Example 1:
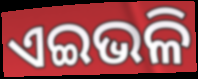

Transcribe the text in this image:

ଏଇଭଳି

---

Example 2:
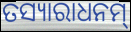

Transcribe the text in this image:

ତସ୍ୟାରାଧନମ୍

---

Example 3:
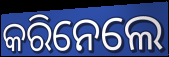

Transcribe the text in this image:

କରିନେଲେ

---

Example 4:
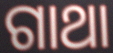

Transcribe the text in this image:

ଗାଥା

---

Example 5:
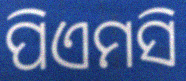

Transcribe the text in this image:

ପିଏମସି